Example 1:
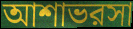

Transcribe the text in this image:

আশাভরসা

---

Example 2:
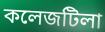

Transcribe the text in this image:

কলেজটিলা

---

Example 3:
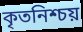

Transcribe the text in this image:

কৃতনিশ্চয়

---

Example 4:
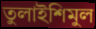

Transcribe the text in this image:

তুলাইশিমুল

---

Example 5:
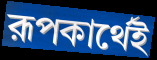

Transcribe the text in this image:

রূপকার্থেই